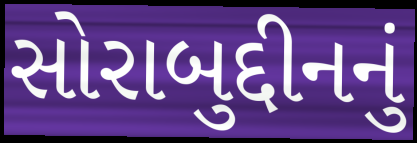
સોરાબુદ્દીનનું